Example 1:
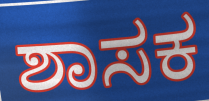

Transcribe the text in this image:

ಶಾಸಕ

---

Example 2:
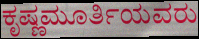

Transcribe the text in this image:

ಕೃಷ್ಣಮೂರ್ತಿಯವರು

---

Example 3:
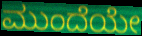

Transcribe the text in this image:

ಮುಂದೆಯೇ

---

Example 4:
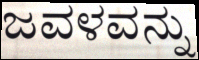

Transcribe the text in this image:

ಜವಳವನ್ನು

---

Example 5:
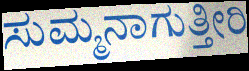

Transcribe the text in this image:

ಸುಮ್ಮನಾಗುತ್ತೀರಿ